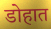
डोहात